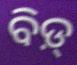
ବିଡ଼୍